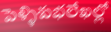
పెళ్ళిశుభలేఖల్లో